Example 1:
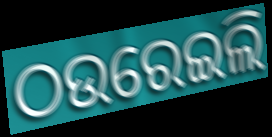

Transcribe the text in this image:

ଠଉରେଇଲି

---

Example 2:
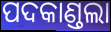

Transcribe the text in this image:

ପଦକାଣ୍ଡଲା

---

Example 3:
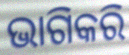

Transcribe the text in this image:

ଭାଗିକରି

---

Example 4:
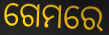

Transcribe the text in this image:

ଗେମରେ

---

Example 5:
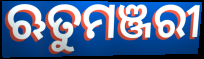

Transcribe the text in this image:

ଋତୁମଞ୍ଜରୀ